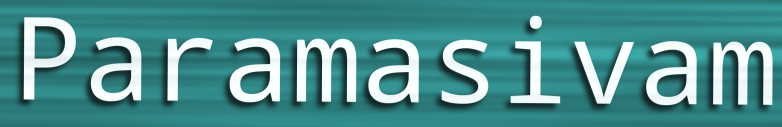
Paramasivam